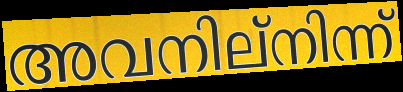
അവനില്നിന്ന്